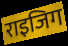
राइजिग